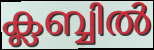
ക്ലബ്ബിൽ